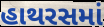
હાથરસમાં